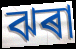
ঝৰা